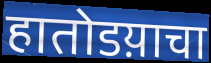
हातोडय़ाचा